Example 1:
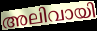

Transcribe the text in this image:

അലിവായി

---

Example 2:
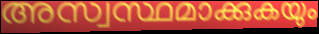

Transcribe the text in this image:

അസ്വസ്ഥമാക്കുകയും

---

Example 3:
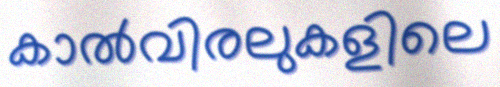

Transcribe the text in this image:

കാൽവിരലുകളിലെ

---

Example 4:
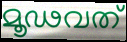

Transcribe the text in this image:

മൂഢവത്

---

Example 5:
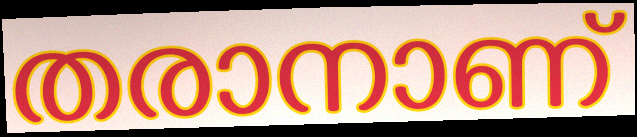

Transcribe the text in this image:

തരാനാണ്